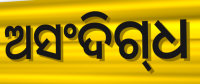
ଅସଂଦିଗ୍‌ଧ